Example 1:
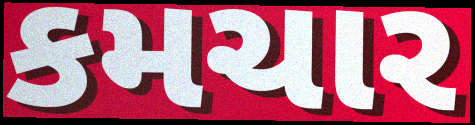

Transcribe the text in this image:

કમચાર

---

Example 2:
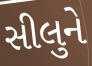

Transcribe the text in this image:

સીલુને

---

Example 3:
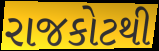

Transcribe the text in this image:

રાજકોટથી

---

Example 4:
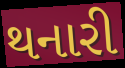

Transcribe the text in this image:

થનારી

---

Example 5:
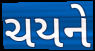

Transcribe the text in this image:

ચયને